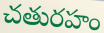
చతురహం